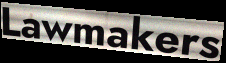
Lawmakers